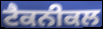
ਟੈਕਨੀਕਲ